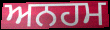
ਅਨਹਮ